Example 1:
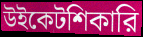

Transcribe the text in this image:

উইকেটশিকারি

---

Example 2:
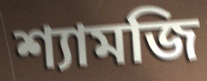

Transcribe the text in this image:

শ্যামজি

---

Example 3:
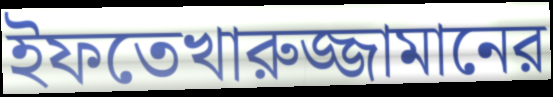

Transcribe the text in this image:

ইফতেখারুজ্জামানের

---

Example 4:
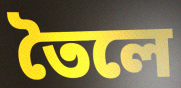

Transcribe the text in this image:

তৈলে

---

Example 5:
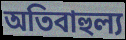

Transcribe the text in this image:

অতিবাহুল্য